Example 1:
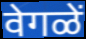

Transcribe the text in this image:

वेगळें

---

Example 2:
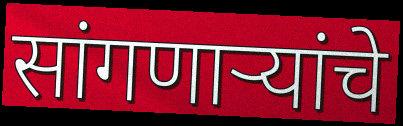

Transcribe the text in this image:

सांगणार्‍यांचे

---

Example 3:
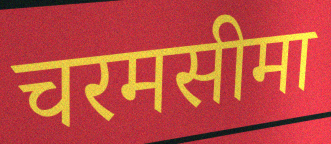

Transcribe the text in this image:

चरमसीमा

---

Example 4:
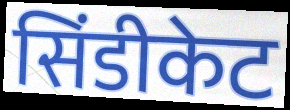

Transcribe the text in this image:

सिंडीकेट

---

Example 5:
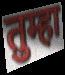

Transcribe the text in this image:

तुम्हा